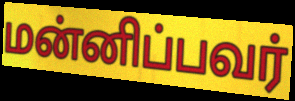
மன்னிப்பவர்